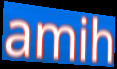
amih